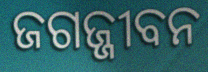
ଜଗଜ୍ଜୀବନ